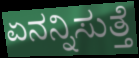
ಏನನ್ನಿಸುತ್ತೆ